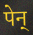
पेन्